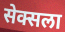
सेक्सला